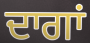
ਦਾਗਾਂ